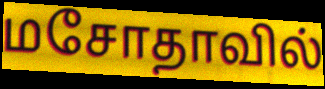
மசோதாவில்